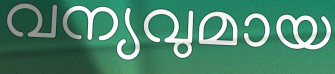
വന്യവുമായ